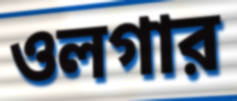
ওলগার